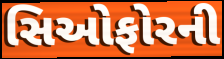
સિઓફોરની